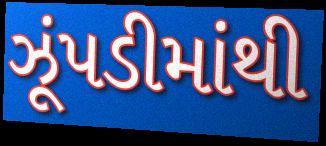
ઝૂંપડીમાંથી